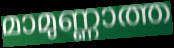
മാമുണ്ണാത്ത